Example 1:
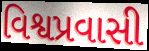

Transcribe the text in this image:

વિશ્વપ્રવાસી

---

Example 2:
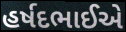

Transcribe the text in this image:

હર્ષદભાઈએ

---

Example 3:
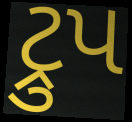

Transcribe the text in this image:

ટ્રુપ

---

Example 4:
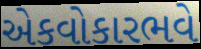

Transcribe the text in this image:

એકવોકારભવે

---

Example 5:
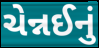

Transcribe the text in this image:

ચેન્નઈનું